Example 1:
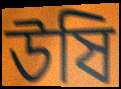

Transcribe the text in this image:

উষি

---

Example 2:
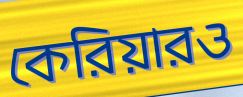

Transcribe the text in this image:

কেরিয়ারও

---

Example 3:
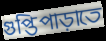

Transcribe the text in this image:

গুপ্তিপাড়াতে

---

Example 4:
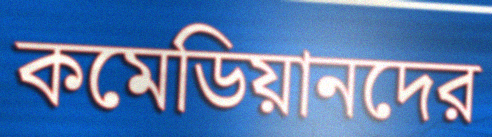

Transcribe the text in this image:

কমেডিয়ানদের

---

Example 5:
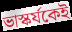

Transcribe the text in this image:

ভাস্কর্যকেই